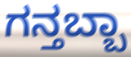
ಗನ್ತಬ್ಬಾ